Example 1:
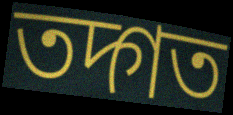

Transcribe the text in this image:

তদ্গত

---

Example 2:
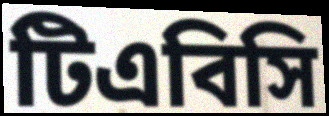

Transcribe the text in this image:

টিএবিসি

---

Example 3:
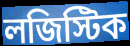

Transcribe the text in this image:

লজিস্টিক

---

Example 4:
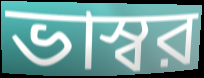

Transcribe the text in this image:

ভাস্বর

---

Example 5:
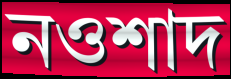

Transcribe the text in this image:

নওশাদ